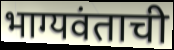
भाग्यवंताची